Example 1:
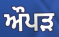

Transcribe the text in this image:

ਔਪੜ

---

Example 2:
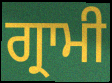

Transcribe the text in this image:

ਗ੍ਰਾਮੀ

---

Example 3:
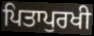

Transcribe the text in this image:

ਪਿਤਾਪੁਰਖੀ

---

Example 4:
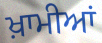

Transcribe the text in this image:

ਖ਼ਾਮੀਆਂ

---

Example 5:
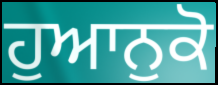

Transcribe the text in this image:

ਹੁਆਨੁਕੋ